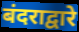
बंदराद्वारे